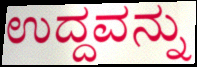
ಉದ್ದವನ್ನು